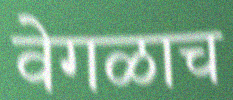
वेगळाच